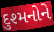
દુશ્મનોને